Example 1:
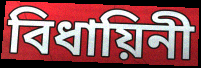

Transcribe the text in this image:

বিধায়িনী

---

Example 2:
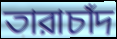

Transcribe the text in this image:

তারাচাঁদ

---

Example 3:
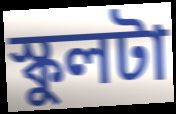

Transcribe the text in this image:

স্কুলটা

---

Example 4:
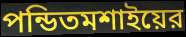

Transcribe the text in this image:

পন্ডিতমশাইয়ের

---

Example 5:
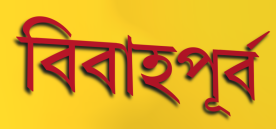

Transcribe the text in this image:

বিবাহপূর্ব